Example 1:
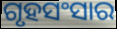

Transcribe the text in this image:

ଗୃହସଂସାର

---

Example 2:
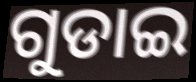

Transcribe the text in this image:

ଗୁଡାଇ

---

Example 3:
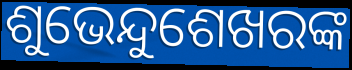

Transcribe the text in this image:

ଶୁଭେନ୍ଦୁଶେଖରଙ୍କ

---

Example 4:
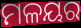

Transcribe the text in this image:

ମଳୟର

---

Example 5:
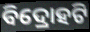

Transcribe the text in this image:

ବିଦ୍ରୋହଟି